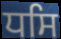
ਧਸਿ